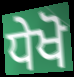
ਧੇਖੋ